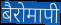
बैरोमापी